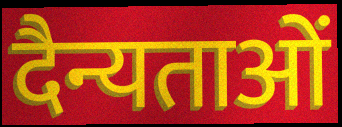
दैन्यताओं